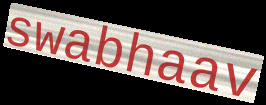
swabhaav